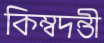
কিম্বদন্তী